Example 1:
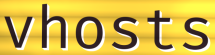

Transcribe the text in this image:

vhosts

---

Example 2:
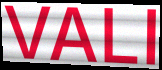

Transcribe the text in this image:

VALI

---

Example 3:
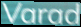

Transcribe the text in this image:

Varad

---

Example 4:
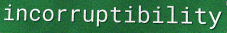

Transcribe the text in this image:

incorruptibility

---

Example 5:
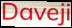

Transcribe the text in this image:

Daveji